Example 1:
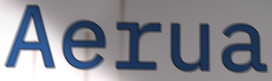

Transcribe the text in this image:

Aerua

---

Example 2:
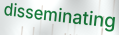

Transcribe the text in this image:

disseminating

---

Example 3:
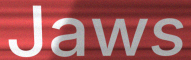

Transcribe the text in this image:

Jaws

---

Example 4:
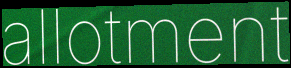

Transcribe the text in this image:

allotment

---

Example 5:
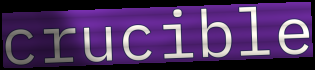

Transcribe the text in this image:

crucible